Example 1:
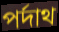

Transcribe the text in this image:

পর্দাথ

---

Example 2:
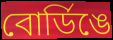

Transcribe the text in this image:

বোর্ডিঙে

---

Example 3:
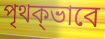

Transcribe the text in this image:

পৃথক্ভাবে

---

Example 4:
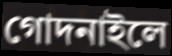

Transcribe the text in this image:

গোদনাইলে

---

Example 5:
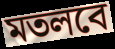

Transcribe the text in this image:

মতলবে